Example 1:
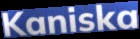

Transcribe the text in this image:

Kaniska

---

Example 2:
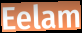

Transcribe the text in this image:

Eelam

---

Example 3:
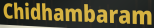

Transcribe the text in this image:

Chidhambaram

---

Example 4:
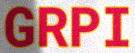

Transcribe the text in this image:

GRPI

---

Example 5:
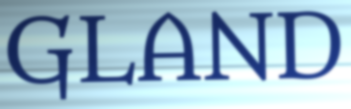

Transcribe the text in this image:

GLAND